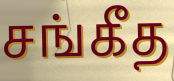
சங்கீத